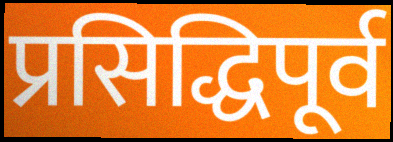
प्रसिद्धिपूर्व